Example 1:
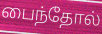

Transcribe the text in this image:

பைந்தோல்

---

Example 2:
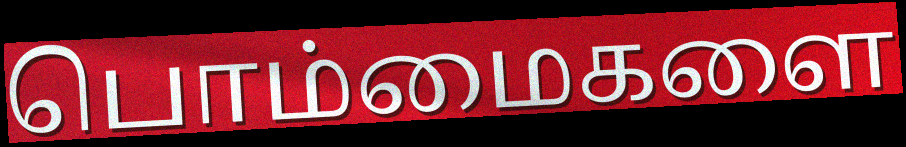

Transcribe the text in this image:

பொம்மைகளை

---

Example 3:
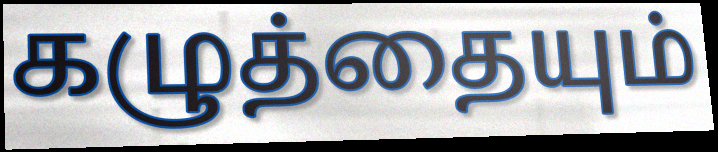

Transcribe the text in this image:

கழுத்தையும்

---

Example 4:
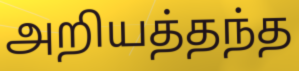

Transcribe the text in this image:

அறியத்தந்த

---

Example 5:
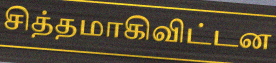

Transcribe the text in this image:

சித்தமாகிவிட்டன